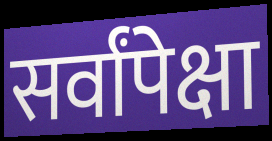
सर्वांपेक्षा